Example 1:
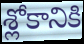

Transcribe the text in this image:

శ్లోకానికి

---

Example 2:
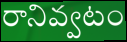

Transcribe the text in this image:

రానివ్వటం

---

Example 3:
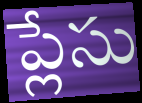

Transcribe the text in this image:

ప్లేసు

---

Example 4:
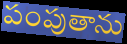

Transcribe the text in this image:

పంపుతాను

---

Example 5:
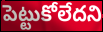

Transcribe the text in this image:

పెట్టుకోలేదని